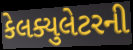
કેલક્યુલેટરની